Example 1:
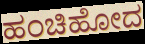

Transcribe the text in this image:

ಹಂಚಿಹೋದ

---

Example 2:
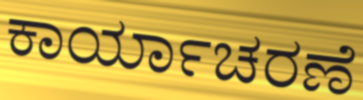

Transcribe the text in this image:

ಕಾರ್ಯಾಚರಣೆ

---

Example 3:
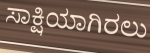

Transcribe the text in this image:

ಸಾಕ್ಷಿಯಾಗಿರಲು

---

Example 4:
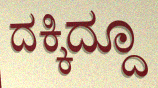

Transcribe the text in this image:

ದಕ್ಕಿದ್ದೂ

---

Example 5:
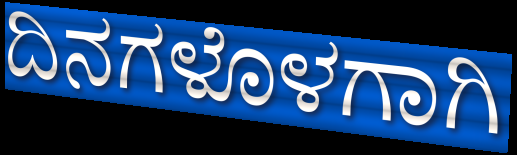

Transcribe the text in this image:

ದಿನಗಳೊಳಗಾಗಿ